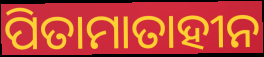
ପିତାମାତାହୀନ